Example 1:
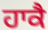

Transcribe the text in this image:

ਹਾਕੈ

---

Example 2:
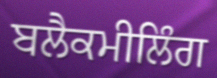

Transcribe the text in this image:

ਬਲੈਕਮੀਲਿੰਗ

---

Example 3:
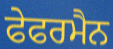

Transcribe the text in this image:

ਫੇਫਰਮੈਨ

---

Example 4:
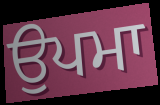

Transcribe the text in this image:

ਉਪਮਾ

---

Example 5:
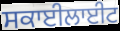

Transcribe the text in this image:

ਸਕਾਈਲਾਈਟ